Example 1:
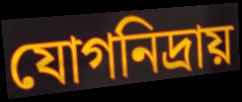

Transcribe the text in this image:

যোগনিদ্রায়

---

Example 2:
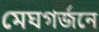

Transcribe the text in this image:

মেঘগর্জনে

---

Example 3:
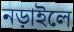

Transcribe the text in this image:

নড়াইলে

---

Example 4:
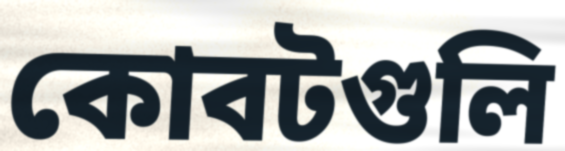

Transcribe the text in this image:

কোবটগুলি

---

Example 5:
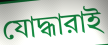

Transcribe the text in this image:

যোদ্ধারাই